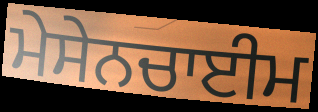
ਮੇਸੇਨਚਾਈਮ